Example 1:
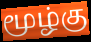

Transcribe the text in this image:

மூழ்கு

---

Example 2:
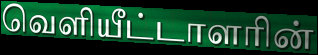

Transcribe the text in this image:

வெளியீட்டாளரின்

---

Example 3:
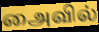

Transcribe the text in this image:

அைவில்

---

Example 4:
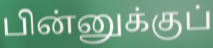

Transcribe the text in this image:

பின்னுக்குப்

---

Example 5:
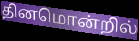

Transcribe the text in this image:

தினமொன்றில்